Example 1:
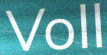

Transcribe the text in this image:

Voll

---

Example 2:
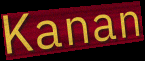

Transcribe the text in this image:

Kanan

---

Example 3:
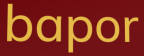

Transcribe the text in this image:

bapor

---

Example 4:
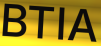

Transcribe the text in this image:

BTIA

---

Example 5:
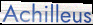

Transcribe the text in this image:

Achilleus